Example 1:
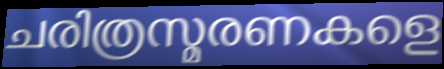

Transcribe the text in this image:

ചരിത്രസ്മരണകളെ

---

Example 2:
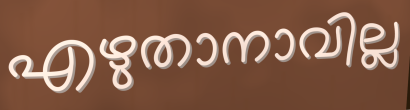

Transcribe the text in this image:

എഴുതാനാവില്ല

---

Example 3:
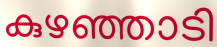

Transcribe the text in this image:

കുഴഞ്ഞാടി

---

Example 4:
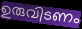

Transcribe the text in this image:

ഉരുവിടണം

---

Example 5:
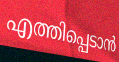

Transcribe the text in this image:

എത്തിപ്പെടാൻ